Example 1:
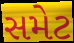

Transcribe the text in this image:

સમેટ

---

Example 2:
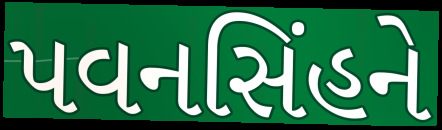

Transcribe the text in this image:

પવનસિંહને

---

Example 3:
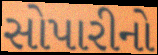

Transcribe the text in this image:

સોપારીનો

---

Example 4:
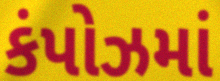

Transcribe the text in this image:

કંપોઝમાં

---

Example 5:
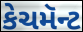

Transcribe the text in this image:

કેચમૅન્ટ